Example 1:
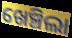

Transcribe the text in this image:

ଖେଞ୍ଚିଲା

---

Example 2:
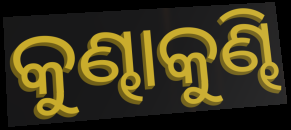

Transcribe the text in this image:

କୁଣ୍ଢାକୁଣ୍ଢି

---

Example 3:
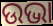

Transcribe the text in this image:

ଉଭା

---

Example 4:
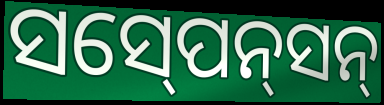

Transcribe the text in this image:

ସସ୍‍ପେନ୍‍ସନ୍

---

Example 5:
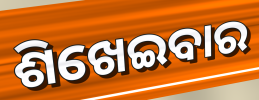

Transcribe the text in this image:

ଶିଖେଇବାର